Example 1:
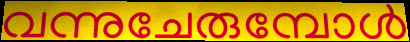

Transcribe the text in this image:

വന്നുചേരുമ്പോൾ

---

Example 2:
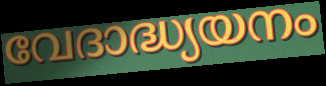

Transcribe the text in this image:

വേദാദ്ധ്യയനം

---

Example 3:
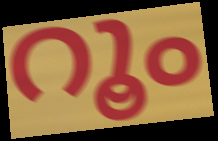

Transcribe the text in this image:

റൂം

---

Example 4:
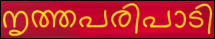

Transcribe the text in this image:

നൃത്തപരിപാടി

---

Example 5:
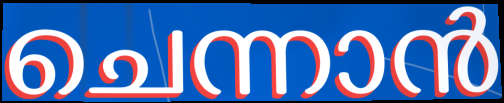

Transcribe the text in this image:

ചെന്നാൻ